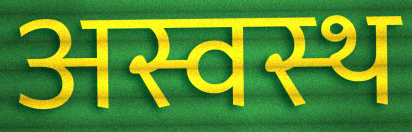
अस्वस्थ